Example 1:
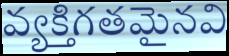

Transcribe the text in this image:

వ్యక్తిగతమైనవి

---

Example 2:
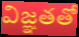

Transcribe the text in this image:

విజ్ఞతతో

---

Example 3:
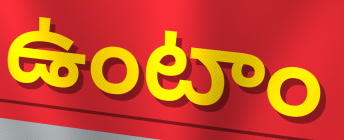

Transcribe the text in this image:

ఉంటాం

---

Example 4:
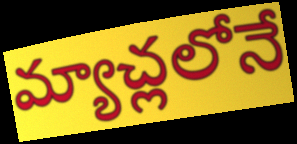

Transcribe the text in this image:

మ్యాచ్లలోనే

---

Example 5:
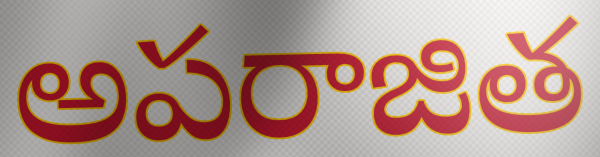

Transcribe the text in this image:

అపరాజిత